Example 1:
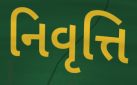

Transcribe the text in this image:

નિવૃત્તિ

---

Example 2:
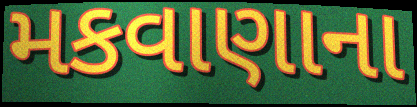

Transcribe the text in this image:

મકવાણાના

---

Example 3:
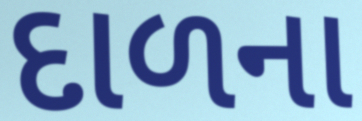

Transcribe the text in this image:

દાળના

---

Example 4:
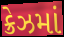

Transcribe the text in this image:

ક્રેઝમાં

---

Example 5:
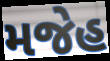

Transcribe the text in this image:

મજેહ